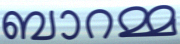
ബാറമ്മ